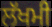
ਲੱਖਮੀ